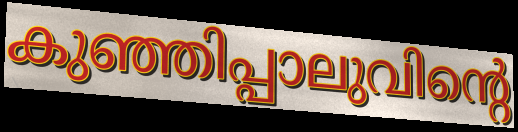
കുഞ്ഞിപ്പാലുവിന്റെ